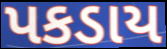
પકડાય